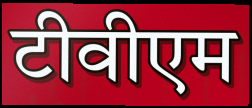
टीवीएम